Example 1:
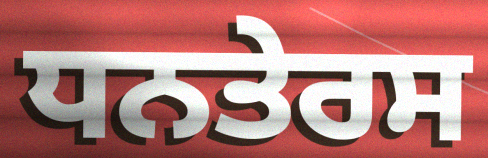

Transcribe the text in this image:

ਧਨਤੇਰਸ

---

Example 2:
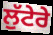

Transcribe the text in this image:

ਲੁੱਟੇਰੇ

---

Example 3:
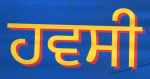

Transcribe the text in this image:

ਹਵਸੀ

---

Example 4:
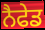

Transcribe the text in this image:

ਨੈਫੇਡ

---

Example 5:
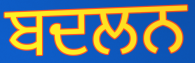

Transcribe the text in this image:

ਬਦਲਨ